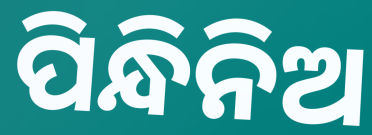
ପିନ୍ଧିନିଅ